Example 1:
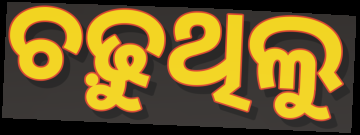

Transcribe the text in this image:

ଚଢ଼ୁଥିଲୁ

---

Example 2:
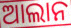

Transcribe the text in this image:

ଆଲାନ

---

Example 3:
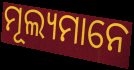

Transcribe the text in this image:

ମୂଲ୍ୟମାନେ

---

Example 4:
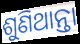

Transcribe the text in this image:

ଶୁଣିଥାନ୍ତା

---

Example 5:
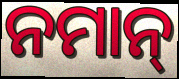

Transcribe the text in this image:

ନମାନ୍